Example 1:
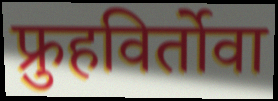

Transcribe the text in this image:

फ्रुहविर्तोवा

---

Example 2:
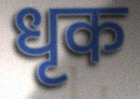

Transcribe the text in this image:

धृक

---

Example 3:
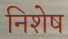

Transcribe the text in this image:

निशेष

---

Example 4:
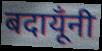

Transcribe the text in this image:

बदायूँनी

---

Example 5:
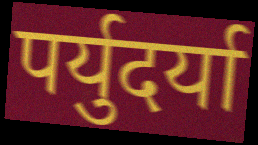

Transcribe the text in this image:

पर्युदर्या